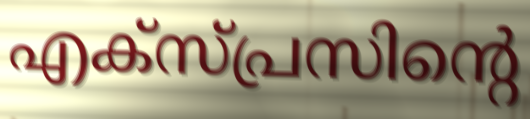
എക്സ്പ്രസിന്റെ